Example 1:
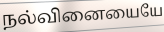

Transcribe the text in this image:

நல்வினையையே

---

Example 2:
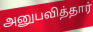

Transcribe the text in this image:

அனுபவித்தார்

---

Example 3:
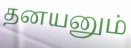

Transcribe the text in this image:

தனயனும்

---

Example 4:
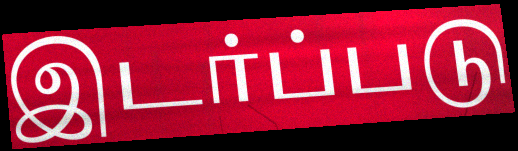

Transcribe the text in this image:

இடர்ப்படு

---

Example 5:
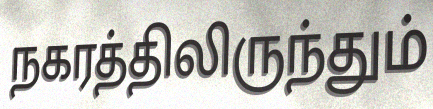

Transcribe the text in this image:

நகரத்திலிருந்தும்